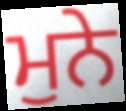
ਮੁਨੇ